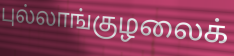
புல்லாங்குழலைக்